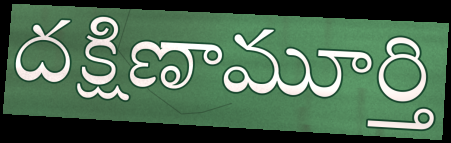
దక్షిణామూర్తి